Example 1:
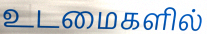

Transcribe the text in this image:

உடமைகளில்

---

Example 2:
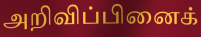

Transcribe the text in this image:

அறிவிப்பினைக்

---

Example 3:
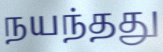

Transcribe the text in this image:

நயந்தது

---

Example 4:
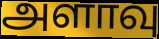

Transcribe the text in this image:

அளாவு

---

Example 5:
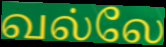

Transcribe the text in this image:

வல்லே